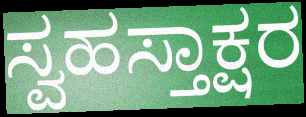
ಸ್ವಹಸ್ತಾಕ್ಷರ